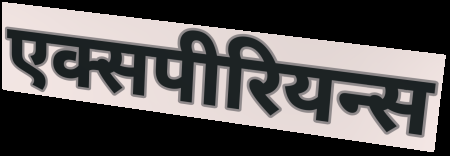
एक्सपीरियन्स